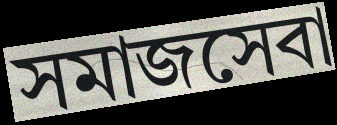
সমাজসেবা